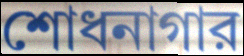
শোধনাগার